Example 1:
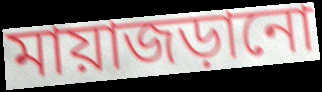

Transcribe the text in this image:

মায়াজড়ানো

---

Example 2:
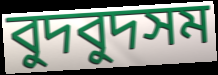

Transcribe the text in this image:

বুদবুদসম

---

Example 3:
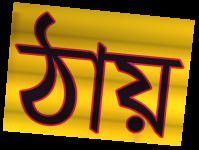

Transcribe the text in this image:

ঠায়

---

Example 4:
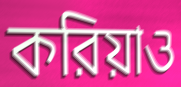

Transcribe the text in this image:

করিয়াও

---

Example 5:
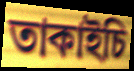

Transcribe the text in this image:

তাকাইচি